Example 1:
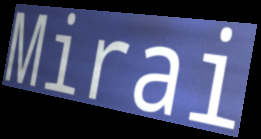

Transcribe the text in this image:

Mirai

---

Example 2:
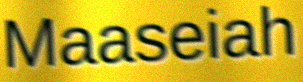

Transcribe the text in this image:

Maaseiah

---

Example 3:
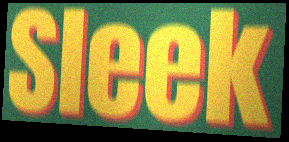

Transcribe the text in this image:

Sleek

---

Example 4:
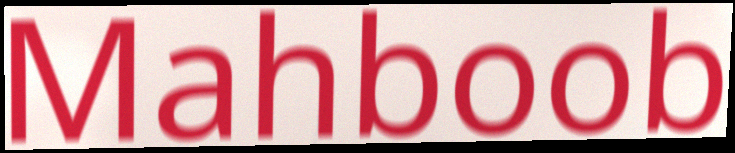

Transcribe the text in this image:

Mahboob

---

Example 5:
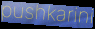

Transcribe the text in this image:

pushkarini